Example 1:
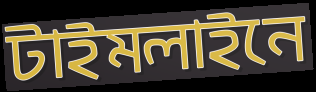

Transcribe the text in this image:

টাইমলাইনে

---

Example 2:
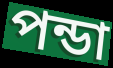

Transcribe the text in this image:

পন্ডা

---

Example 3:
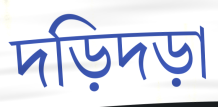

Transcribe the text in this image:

দড়িদড়া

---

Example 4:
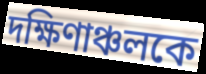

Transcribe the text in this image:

দক্ষিণাঞ্চলকে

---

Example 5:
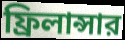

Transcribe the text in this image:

ফ্রিলান্সার